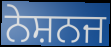
ਨੇਸ਼ਨਜ